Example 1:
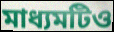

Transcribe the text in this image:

মাধ্যমটিও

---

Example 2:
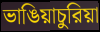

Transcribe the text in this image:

ভাঙিয়াচুরিয়া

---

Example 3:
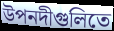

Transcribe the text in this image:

উপনদীগুলিতে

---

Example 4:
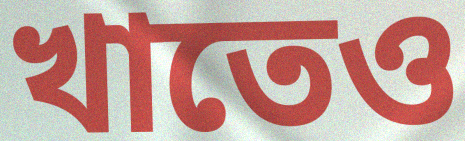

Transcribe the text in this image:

খাতেও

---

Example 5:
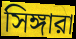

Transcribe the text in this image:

সিঙ্গারা